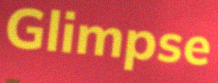
Glimpse